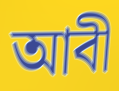
আবী